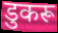
डुकरू